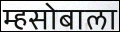
म्हसोबाला